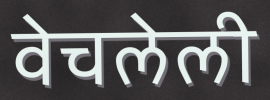
वेचलेली